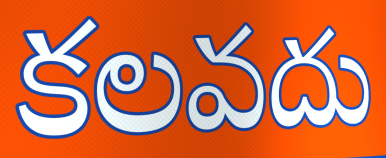
కలవదు